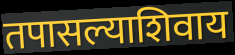
तपासल्याशिवाय